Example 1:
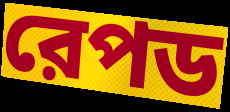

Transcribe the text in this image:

রেপড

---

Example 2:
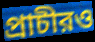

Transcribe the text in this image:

প্রাচীরও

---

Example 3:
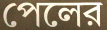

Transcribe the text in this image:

পেলের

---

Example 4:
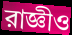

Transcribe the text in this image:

রাজ্ঞীও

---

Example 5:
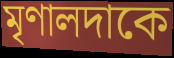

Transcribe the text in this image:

মৃণালদাকে